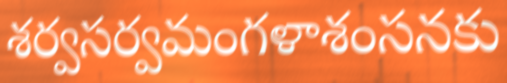
శర్వసర్వమంగళాశంసనకు